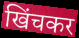
खिंचकर